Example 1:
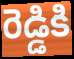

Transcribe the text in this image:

రెడ్డికి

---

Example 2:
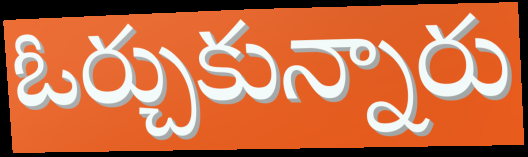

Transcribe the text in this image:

ఓర్చుకున్నారు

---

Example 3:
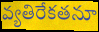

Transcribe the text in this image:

వ్యతిరేకతనూ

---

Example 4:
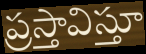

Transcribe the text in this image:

ప్రస్తావిస్తూ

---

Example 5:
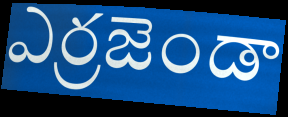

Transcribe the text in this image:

ఎర్రజెండా